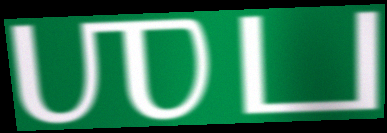
ஶப